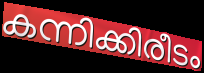
കന്നിക്കിരീടം